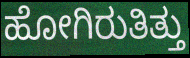
ಹೋಗಿರುತಿತ್ತು